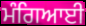
ਮੰਗਿਆਈ